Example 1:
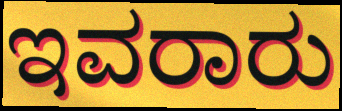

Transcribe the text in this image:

ಇವರಾರು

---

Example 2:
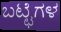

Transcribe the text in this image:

ಬಟ್ಟೆಗಳ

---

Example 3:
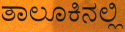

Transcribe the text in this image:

ತಾಲೂಕಿನಲ್ಲಿ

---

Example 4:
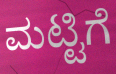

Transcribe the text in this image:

ಮಟ್ಟಿಗೆ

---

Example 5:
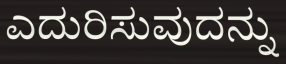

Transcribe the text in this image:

ಎದುರಿಸುವುದನ್ನು